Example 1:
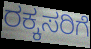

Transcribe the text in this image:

ರಕ್ಕಸರಿಗೆ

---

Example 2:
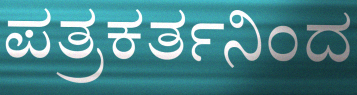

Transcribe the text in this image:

ಪತ್ರಕರ್ತನಿಂದ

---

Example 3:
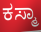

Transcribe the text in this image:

ಕಸ್ಮಾ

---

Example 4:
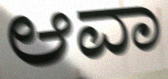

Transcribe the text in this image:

ಆವಾ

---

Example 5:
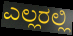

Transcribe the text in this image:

ಎಲ್ಲರಲ್ಲಿ